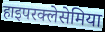
हाइपरक्लेसेमिया